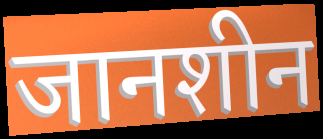
जानशीन